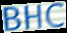
BHC